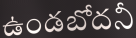
ఉండబోదనీ